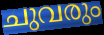
ചുവരും